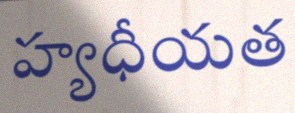
హ్యధీయత